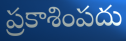
ప్రకాశింపదు